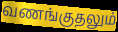
வணங்குதலும்